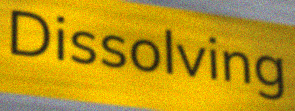
Dissolving